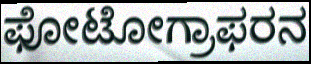
ಫೋಟೋಗ್ರಾಫರನ